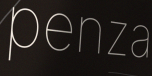
penza